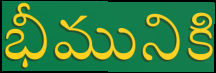
భీమునికి